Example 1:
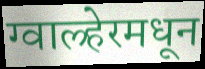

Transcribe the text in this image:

ग्वाल्हेरमधून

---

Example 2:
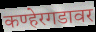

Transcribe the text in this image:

कण्हेरगडावर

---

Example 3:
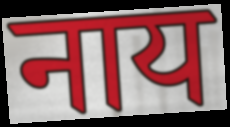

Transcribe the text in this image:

नाय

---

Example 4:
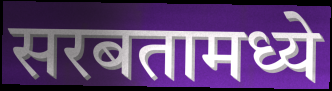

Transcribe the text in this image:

सरबतामध्ये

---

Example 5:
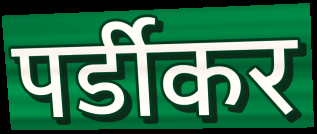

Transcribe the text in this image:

पर्डीकर